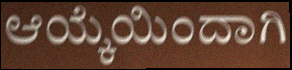
ಆಯ್ಕೆಯಿಂದಾಗಿ